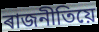
ৰাজনীতিয়ে